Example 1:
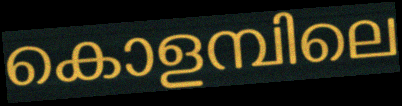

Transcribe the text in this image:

കൊളമ്പിലെ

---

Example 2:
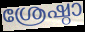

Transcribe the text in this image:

ശ്രേഷ്ഠാ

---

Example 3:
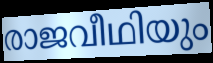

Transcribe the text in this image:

രാജവീഥിയും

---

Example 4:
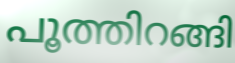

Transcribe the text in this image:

പൂത്തിറങ്ങി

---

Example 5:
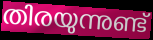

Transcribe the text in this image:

തിരയുന്നുണ്ട്